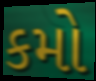
કમો